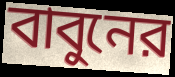
বাবুনের